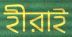
হীরাই